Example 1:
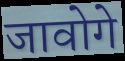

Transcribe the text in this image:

जावोगे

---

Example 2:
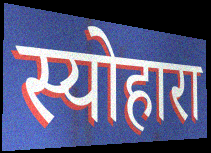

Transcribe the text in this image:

स्योहारा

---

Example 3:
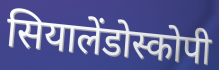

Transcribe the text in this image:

सियालेंडोस्कोपी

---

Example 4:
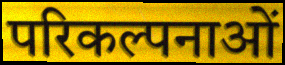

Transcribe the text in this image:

परिकल्पनाओं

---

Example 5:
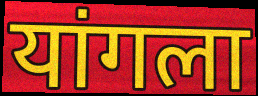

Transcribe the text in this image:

यांगला